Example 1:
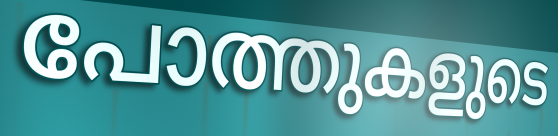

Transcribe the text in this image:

പോത്തുകളുടെ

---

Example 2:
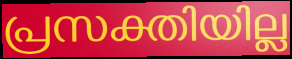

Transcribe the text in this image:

പ്രസക്തിയില്ല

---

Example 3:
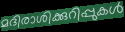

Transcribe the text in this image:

മദിരാശിക്കുറിപ്പുകൾ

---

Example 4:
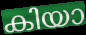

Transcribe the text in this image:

കിയാ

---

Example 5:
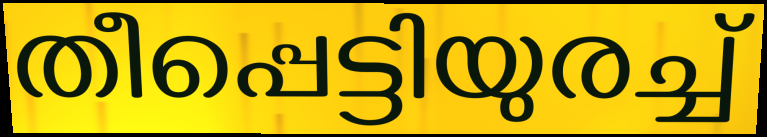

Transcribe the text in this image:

തീപ്പെട്ടിയുരച്ച്